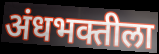
अंधभक्तीला